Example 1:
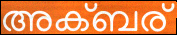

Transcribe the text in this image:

അക്ബര്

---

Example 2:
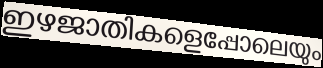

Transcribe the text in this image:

ഇഴജാതികളെപ്പോലെയും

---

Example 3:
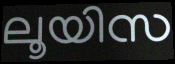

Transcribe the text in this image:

ലൂയിസ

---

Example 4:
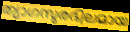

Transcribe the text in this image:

ത്യാഗസുരഭിലമായ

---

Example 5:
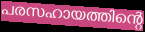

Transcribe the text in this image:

പരസഹായത്തിന്റെ